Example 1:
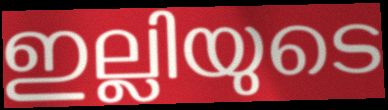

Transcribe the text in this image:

ഇല്ലിയുടെ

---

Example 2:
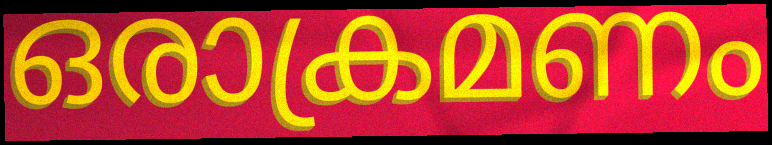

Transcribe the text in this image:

ഒരാക്രമണം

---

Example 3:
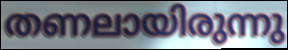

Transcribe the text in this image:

തണലായിരുന്നു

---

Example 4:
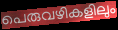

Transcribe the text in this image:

പെരുവഴികളിലും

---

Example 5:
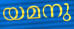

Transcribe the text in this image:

യമനു